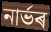
নাৰ্ভৰ